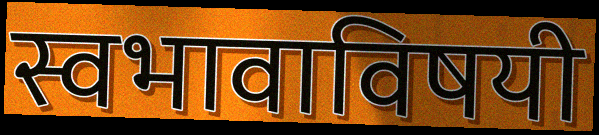
स्वभावाविषयी